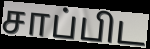
சாப்பிட